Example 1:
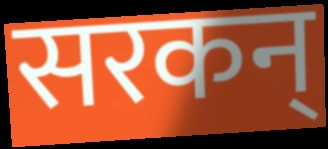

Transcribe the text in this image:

सरकन्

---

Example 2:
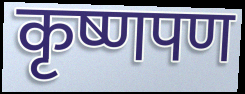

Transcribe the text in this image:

कृष्णपण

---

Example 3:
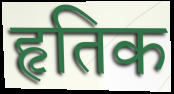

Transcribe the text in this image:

हृतिक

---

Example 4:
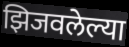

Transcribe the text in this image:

झिजवलेल्या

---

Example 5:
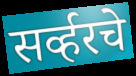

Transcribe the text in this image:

सर्व्हरचे